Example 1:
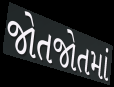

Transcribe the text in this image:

જોતજોતમાં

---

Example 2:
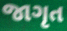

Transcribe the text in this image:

જાગૃત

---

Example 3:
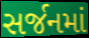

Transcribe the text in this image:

સર્જનમાં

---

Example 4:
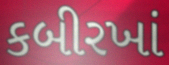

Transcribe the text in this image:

કબીરખાં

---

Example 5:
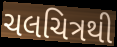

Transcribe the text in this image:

ચલચિત્રથી